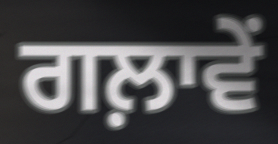
ਗਲ਼ਾਵੇਂ